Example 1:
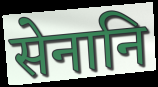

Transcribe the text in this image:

सेनानि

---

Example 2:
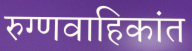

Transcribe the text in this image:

रुग्णवाहिकांत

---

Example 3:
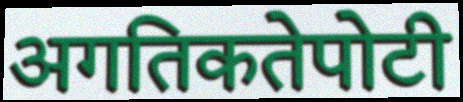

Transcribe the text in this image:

अगतिकतेपोटी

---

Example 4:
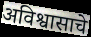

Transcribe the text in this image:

अविश्वासाचे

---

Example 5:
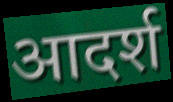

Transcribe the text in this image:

आदर्श